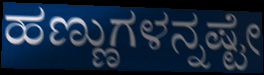
ಹಣ್ಣುಗಳನ್ನಷ್ಟೇ